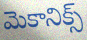
మెకానిక్స్